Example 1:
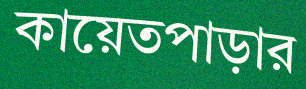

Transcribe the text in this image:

কায়েতপাড়ার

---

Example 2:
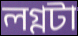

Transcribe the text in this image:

লগ্নটা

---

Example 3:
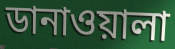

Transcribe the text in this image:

ডানাওয়ালা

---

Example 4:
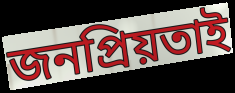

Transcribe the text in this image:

জনপ্রিয়তাই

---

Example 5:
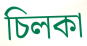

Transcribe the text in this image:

চিলকা